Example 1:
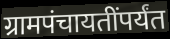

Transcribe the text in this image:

ग्रामपंचायतींपर्यंत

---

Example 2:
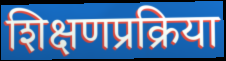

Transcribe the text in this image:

शिक्षणप्रक्रिया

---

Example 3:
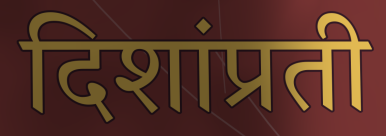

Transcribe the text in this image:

दिशांप्रती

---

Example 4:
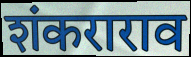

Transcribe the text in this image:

शंकराराव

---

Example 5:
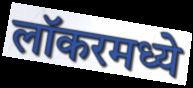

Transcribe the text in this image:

लॉकरमध्ये